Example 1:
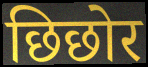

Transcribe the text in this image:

छिछोर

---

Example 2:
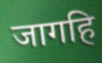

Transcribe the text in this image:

जागहि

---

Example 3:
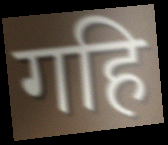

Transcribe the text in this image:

गहि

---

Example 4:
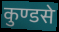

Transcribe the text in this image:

कुण्डसे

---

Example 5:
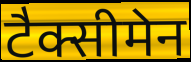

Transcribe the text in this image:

टैक्सीमेन